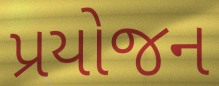
પ્રયોજન